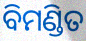
ବିମଣ୍ଡିତ